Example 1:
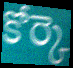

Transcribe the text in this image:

కోర్కె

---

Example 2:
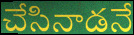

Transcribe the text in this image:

చేసినాడనే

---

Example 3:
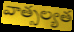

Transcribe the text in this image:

వాత్సల్యత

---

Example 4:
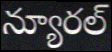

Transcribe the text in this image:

న్యూరల్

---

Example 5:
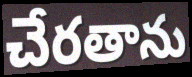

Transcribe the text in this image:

చేరతాను